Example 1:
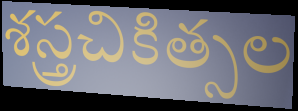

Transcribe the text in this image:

శస్త్రచికిత్సల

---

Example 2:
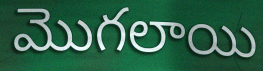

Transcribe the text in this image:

మొగలాయి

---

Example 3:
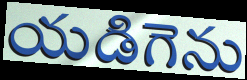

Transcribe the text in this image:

యడిగెను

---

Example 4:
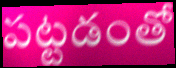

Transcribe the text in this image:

పట్టడంతో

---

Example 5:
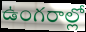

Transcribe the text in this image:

ఉంగరాల్లో